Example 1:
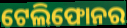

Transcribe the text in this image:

ଟେଲିଫୋନର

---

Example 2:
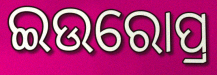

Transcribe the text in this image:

ଇଉରୋପ୍ର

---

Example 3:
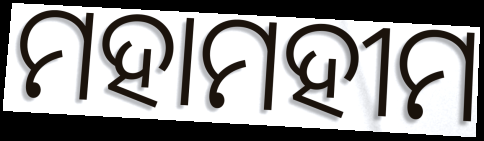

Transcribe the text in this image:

ମହାମହୀମ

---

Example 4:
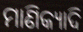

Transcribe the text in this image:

ମାଣିକ୍ୟାଦି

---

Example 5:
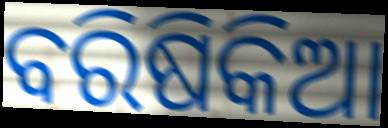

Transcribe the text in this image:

ବରିଷିକିଆ